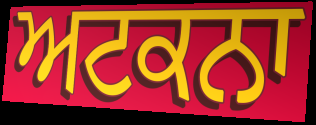
ਅਟਕਨਾ